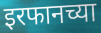
इरफानच्या